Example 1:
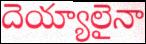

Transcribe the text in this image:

దెయ్యాలైనా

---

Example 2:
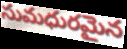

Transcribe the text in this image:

సుమధురమైన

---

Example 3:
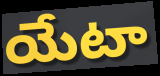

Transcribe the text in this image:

యేటా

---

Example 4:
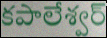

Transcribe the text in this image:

కపాలేశ్వర్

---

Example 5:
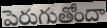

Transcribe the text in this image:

పెరుగుతోందా